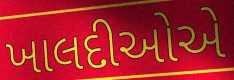
ખાલદીઓએ